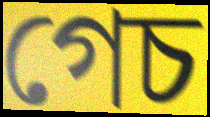
গেচ